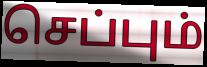
செப்பும்